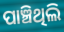
ପାଞ୍ଚିଥିଲି